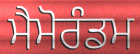
ਮੈਮੋਰੰਡਮ